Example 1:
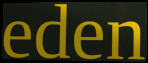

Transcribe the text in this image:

eden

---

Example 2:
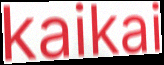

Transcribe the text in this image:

kaikai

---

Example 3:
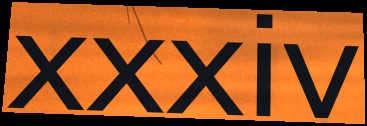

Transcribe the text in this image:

xxxiv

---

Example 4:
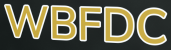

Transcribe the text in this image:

WBFDC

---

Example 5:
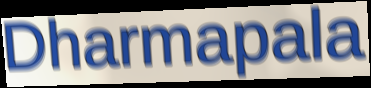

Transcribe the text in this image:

Dharmapala